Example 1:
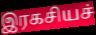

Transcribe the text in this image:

இரகசியச்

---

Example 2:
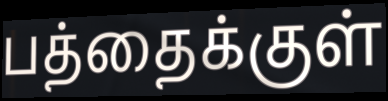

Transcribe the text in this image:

பத்தைக்குள்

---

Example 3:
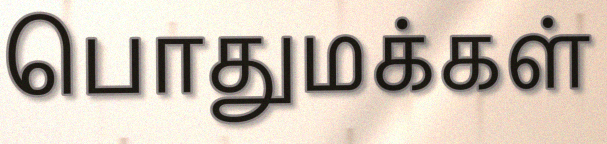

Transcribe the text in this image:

பொதுமக்கள்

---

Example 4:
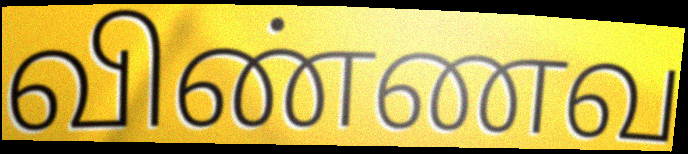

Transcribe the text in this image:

விண்ணவ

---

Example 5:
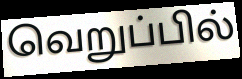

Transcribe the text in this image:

வெறுப்பில்